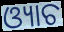
ଓ୍ୟାଚ